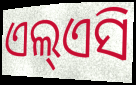
ଏଲ୍ଏସି